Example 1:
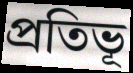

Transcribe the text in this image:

প্ৰতিভূ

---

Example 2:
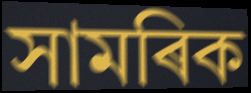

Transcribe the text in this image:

সামৰিক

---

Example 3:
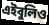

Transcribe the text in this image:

এইবুলিও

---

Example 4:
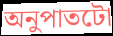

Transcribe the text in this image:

অনুপাতটো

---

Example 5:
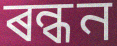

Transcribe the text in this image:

ৰন্ধন